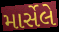
માર્સેલે